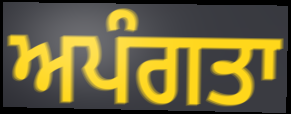
ਅਪੰਗਤਾ